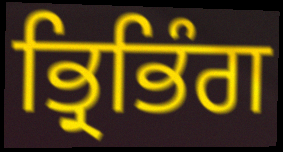
ਭ੍ਰਿਭਿੰਗ